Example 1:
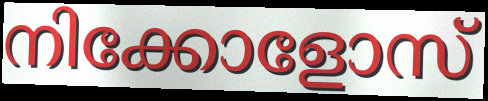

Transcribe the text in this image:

നിക്കോളോസ്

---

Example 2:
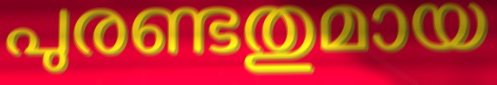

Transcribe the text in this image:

പുരണ്ടതുമായ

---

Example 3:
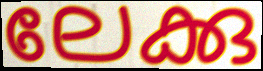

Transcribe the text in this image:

ലേക്കു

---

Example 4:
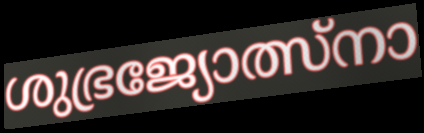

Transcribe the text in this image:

ശുഭ്രജ്യോത്സ്നാ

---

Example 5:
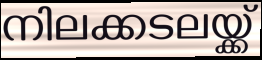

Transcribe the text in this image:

നിലക്കടലയ്ക്ക്